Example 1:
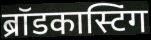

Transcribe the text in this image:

ब्रॉडकास्टिंग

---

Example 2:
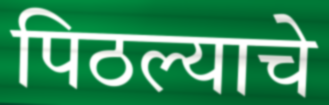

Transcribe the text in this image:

पिठल्याचे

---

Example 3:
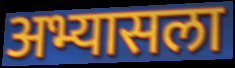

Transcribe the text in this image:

अभ्यासला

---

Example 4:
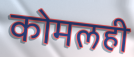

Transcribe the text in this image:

कोमलही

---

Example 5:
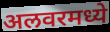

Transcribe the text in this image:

अलवरमध्ये